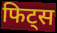
फिट्स